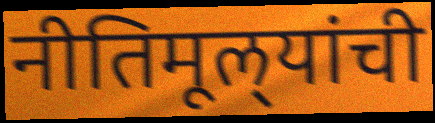
नीतिमूल्यांची